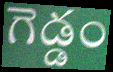
గెడ్డం